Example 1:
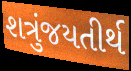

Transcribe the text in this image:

શત્રુંજયતીર્થ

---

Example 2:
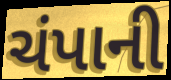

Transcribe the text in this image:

ચંપાની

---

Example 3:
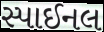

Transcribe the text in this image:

સ્પાઈનલ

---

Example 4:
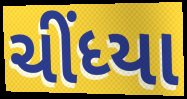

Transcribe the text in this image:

ચીંધ્યા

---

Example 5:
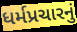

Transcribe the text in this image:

ધર્મપ્રચારનું